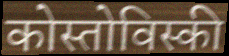
कोस्तोविस्की